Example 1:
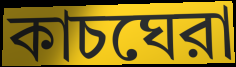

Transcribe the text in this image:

কাচঘেরা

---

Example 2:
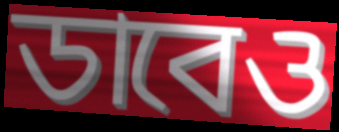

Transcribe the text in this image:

ডাবেও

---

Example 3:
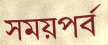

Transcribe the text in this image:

সময়পর্ব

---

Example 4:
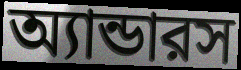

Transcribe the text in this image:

অ্যান্ডারস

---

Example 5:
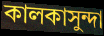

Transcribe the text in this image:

কালকাসুন্দা